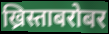
ख्रिस्ताबरोबर